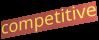
competitive